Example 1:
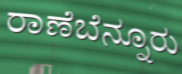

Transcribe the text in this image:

ರಾಣೆಬೆನ್ನೂರು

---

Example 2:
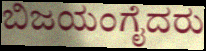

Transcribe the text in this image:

ಬಿಜಯಂಗೈದರು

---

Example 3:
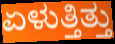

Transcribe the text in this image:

ಏಳುತ್ತಿತ್ತು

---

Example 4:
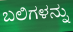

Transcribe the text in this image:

ಬಲಿಗಳನ್ನು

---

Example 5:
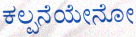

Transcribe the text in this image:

ಕಲ್ಪನೆಯೇನೋ